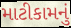
માટીકામનું